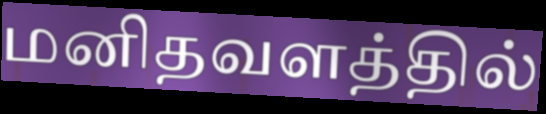
மனிதவளத்தில்